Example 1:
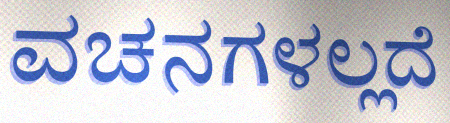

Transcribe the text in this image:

ವಚನಗಳಲ್ಲದೆ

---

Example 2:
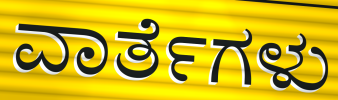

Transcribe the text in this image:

ವಾರ್ತೆಗಳು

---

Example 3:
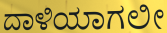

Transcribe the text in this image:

ದಾಳಿಯಾಗಲೀ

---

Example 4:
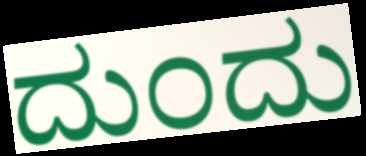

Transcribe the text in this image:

ದುಂದು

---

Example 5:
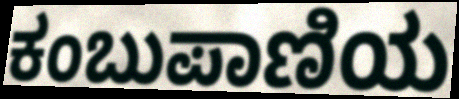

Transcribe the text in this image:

ಕಂಬುಪಾಣಿಯ